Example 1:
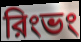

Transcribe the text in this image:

রিংভং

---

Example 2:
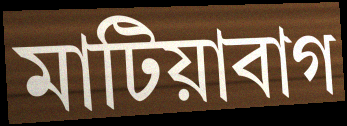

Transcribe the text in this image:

মাটিয়াবাগ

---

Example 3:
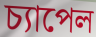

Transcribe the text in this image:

চ্যাপেল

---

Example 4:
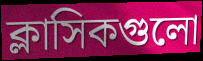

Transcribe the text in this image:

ক্লাসিকগুলো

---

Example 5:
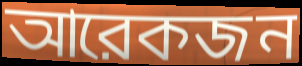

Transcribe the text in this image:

আরেকজন